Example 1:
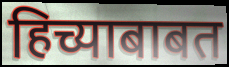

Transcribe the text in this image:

हिच्याबाबत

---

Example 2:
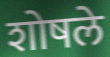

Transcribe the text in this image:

शोषले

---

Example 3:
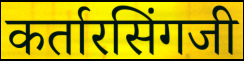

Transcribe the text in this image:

कर्तारसिंगजी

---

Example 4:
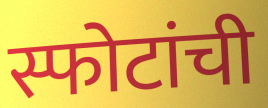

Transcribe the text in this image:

स्फोटांची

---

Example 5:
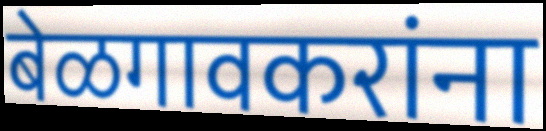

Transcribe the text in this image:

बेळगावकरांना